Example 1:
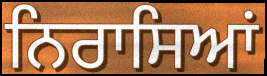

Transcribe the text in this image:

ਨਿਰਾਸਿਆਂ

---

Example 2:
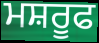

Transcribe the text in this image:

ਮਸ਼ਰੂਫ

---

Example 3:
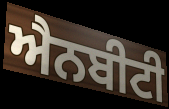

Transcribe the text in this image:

ਐਨਬੀਟੀ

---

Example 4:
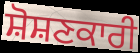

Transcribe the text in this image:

ਸ਼ੋਸ਼ਣਕਾਰੀ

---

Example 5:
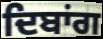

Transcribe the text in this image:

ਦਿਬਾਂਗ